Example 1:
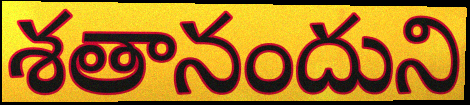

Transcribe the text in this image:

శతానందుని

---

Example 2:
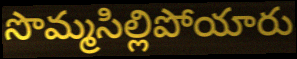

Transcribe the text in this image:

సొమ్మసిల్లిపోయారు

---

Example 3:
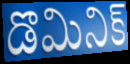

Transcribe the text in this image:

డొమినిక్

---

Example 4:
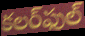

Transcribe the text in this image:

కలర్‌ఫుల్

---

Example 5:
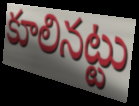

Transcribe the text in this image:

కూలినట్టు